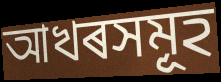
আখৰসমূহ